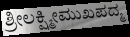
ಶ್ರೀಲಕ್ಷ್ಮೀಮುಖಪದ್ಮ